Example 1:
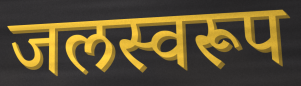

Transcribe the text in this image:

जलस्वरूप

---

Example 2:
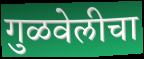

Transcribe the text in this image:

गुळवेलीचा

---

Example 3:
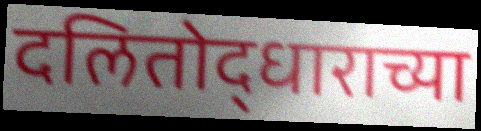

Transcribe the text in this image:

दलितोद्धाराच्या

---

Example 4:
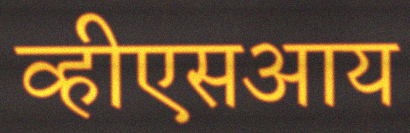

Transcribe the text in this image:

व्हीएसआय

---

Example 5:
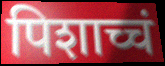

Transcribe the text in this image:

पिशाच्चं